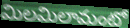
మిలమిలామంటో